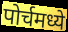
पोर्चमध्ये